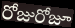
రోజురోజూ